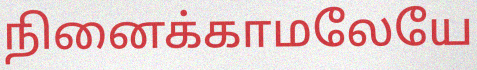
நினைக்காமலேயே